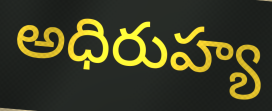
అధిరుహ్య